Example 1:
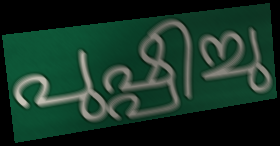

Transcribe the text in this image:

പുഷ്പിച്ചു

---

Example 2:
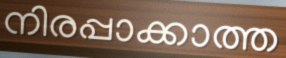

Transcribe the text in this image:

നിരപ്പാക്കാത്ത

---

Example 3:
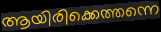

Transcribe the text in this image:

ആയിരിക്കെത്തന്നെ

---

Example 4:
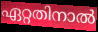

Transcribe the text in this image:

ഏറ്റതിനാൽ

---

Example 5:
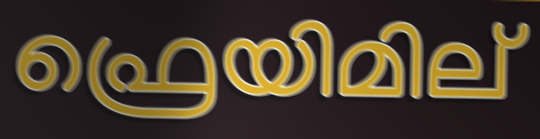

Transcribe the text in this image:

ഫ്രെയിമില്